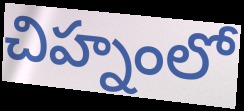
చిహ్నంలో